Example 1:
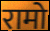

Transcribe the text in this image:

रामो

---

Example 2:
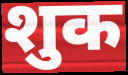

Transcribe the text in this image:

शुक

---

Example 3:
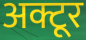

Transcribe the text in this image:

अक्टूर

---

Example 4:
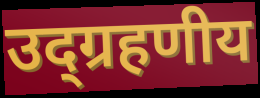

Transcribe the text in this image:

उद्ग्रहणीय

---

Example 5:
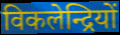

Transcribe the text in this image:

विकलेन्द्रियों